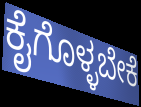
ಕೈಗೊಳ್ಳಬೇಕೆ